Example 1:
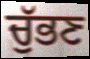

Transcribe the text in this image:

ਚੁੱਭਣ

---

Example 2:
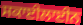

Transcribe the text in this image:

ਸਕਾਈਲਾਈਨ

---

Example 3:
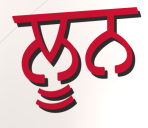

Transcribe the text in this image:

ਲੂਨ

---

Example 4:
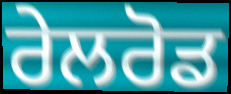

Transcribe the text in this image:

ਰੇਲਰੋਡ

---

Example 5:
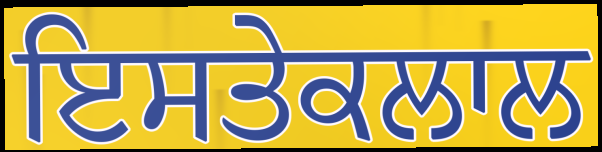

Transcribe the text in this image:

ਇਸਤੇਕਲਾਲ